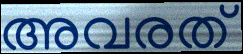
അവരത്